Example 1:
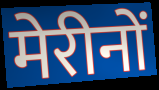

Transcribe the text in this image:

मेरीनों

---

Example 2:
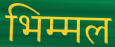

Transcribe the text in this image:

भिम्मल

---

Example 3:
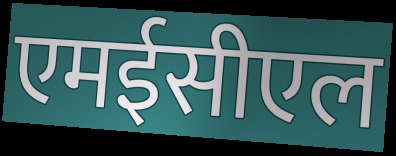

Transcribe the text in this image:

एमईसीएल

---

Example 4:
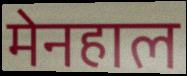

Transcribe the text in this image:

मेनहाल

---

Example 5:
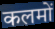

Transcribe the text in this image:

कलमों